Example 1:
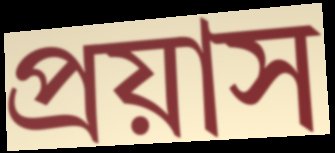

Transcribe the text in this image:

প্রয়াস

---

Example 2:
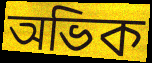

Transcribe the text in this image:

অভিক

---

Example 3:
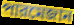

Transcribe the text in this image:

পারমেজান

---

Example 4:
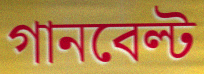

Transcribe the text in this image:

গানবেল্ট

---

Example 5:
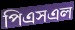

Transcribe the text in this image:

পিএসএল